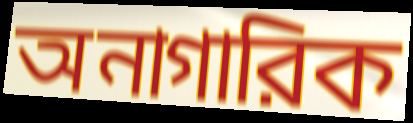
অনাগারিক